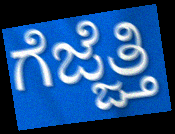
ಗೆಜ್ಜೆತ್ತಿ